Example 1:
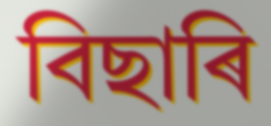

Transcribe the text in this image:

বিছাৰি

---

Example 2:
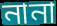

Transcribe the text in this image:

নানা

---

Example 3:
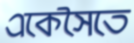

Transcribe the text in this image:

একেসৈতে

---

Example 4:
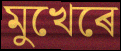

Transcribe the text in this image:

মুখেৰে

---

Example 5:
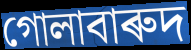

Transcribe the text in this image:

গোলাবাৰুদ